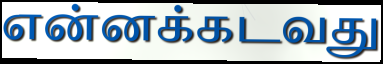
என்னக்கடவது